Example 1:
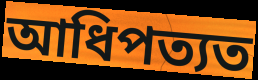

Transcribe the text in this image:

আধিপত্যত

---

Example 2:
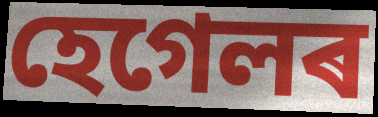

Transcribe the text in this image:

হেগেলৰ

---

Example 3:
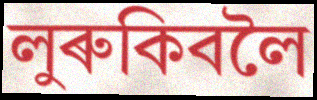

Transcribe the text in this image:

লুৰুকিবলৈ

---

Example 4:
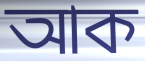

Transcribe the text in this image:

আক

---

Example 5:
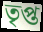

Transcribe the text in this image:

তৃপ্ত